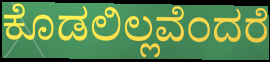
ಕೊಡಲಿಲ್ಲವೆಂದರೆ